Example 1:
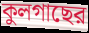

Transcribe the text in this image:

কুলগাছের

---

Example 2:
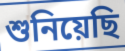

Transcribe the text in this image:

শুনিয়েছি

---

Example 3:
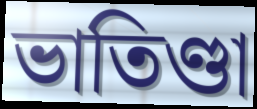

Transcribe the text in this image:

ভাতিণ্ডা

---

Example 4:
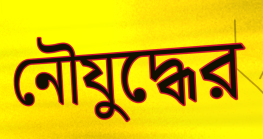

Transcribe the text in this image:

নৌযুদ্ধের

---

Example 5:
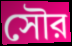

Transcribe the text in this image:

সৌর